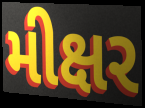
મીક્ષર